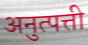
अनुत्पत्ती